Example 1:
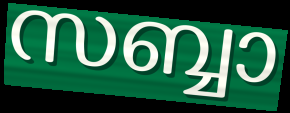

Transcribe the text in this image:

സബ്ബാ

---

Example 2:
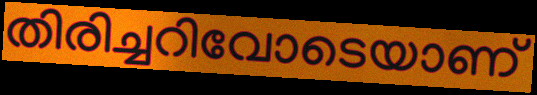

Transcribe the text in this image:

തിരിച്ചറിവോടെയാണ്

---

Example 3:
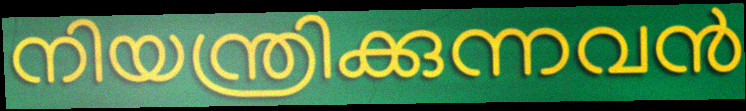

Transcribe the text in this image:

നിയന്ത്രിക്കുന്നവൻ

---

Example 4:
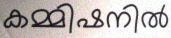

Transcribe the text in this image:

കമ്മിഷനിൽ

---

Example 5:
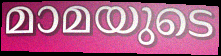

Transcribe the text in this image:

മാമയുടെ